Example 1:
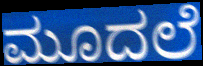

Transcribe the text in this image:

ಮೂದಲೆ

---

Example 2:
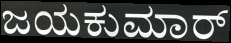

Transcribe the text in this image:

ಜಯಕುಮಾರ್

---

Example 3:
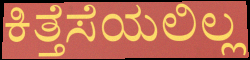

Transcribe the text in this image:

ಕಿತ್ತೆಸೆಯಲಿಲ್ಲ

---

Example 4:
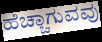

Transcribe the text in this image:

ಹೆಚ್ಚಾಗುವವು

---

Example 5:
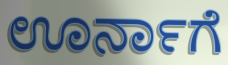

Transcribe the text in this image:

ಊರ್ನಾಗೆ